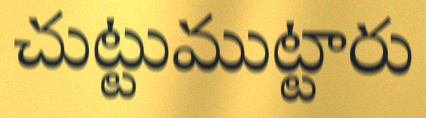
చుట్టుముట్టారు